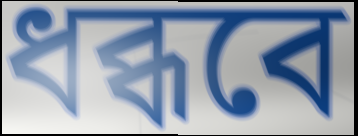
ধব্ধবে